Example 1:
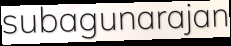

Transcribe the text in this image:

subagunarajan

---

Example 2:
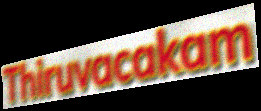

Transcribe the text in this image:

Thiruvacakam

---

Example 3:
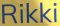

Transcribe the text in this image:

Rikki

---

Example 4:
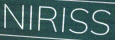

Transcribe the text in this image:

NIRISS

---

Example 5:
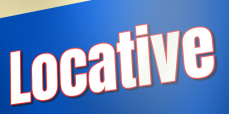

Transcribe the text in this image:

Locative